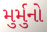
મુર્મુનો